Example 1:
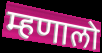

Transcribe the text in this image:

म्हणालो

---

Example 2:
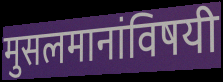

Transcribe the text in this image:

मुसलमानांविषयी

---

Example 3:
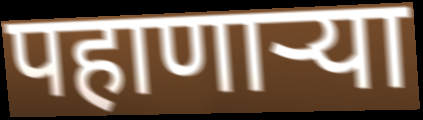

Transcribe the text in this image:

पहाणार्‍या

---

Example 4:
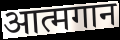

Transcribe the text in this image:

आत्मगान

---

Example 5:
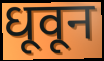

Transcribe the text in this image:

धूवून